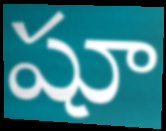
షూ